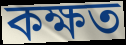
কক্ষত